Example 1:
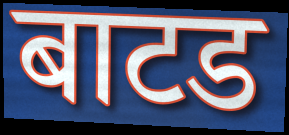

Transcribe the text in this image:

बाटड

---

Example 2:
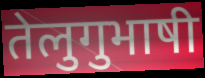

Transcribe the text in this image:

तेलुगुभाषी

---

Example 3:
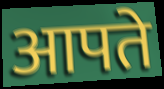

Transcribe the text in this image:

आपते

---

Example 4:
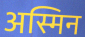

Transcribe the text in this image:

अस्मिन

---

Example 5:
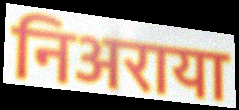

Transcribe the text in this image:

निअराया